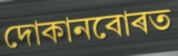
দোকানবোৰত